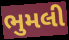
ભુમલી